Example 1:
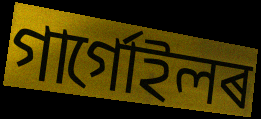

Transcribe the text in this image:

গাৰ্গোইলৰ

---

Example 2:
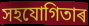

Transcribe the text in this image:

সহযোগিতাৰ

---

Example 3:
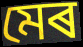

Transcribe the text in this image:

মেৰ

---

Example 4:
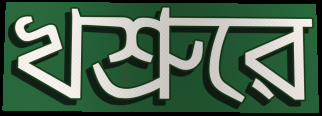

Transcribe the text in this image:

খশ্ৰুৱে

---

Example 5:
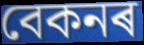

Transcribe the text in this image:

বেকনৰ